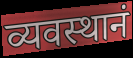
व्यवस्थानं